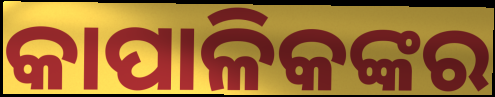
କାପାଳିକଙ୍କର